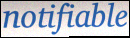
notifiable